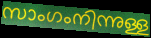
സാംഗംനിന്നുള്ള